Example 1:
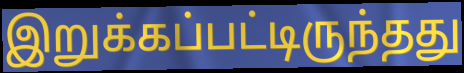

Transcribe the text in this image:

இறுக்கப்பட்டிருந்தது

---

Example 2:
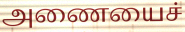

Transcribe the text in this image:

அணையைச்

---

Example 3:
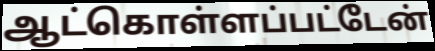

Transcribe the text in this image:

ஆட்கொள்ளப்பட்டேன்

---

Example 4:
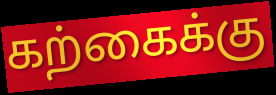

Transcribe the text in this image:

கற்கைக்கு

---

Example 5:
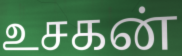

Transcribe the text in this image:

உசகன்